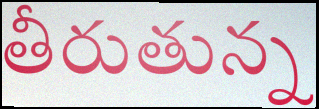
తీరుతున్న